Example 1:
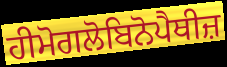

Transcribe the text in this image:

ਹੀਮੋਗਲੋਬਿਨੋਪੈਥੀਜ਼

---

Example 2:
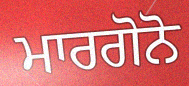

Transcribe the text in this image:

ਮਾਰਗੋਨੋ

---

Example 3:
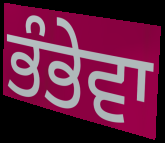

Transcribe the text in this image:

ਭੰਭੇਵਾ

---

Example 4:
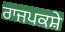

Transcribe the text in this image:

ਰਾਜਪਕਸ਼ੇ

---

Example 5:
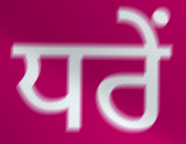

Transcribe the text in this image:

ਧਰੇਂ